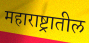
महाराष्ट्रातील